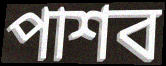
পাশব